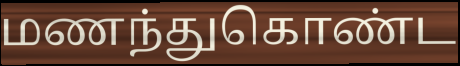
மணந்துகொண்ட